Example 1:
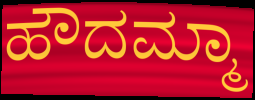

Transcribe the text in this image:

ಹೌದಮ್ಮಾ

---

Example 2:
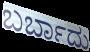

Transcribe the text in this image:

ಬರ್ಬಾದು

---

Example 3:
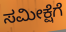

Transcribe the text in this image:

ಸಮೀಕ್ಷೆಗೆ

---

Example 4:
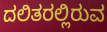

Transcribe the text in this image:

ದಲಿತರಲ್ಲಿರುವ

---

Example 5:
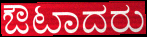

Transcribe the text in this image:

ಔಟಾದರು